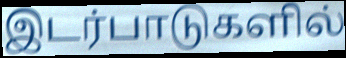
இடர்பாடுகளில்